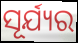
ସୂର୍ଯ୍ୟର